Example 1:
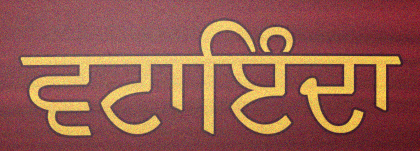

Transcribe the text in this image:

ਵਟਾਇੰਦਾ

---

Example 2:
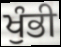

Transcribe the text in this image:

ਖੁੰਭੀ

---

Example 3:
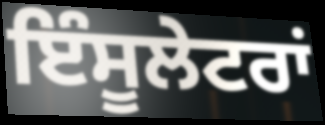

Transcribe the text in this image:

ਇੰਸੂਲੇਟਰਾਂ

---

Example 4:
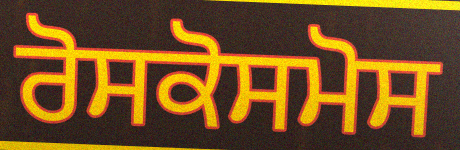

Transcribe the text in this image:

ਰੋਸਕੋਸਮੋਸ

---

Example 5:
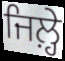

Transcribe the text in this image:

ਜਿਲ਼੍ਹੇ